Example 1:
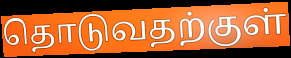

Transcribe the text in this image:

தொடுவதற்குள்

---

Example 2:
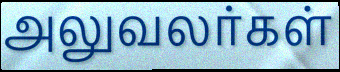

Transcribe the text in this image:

அலுவலர்கள்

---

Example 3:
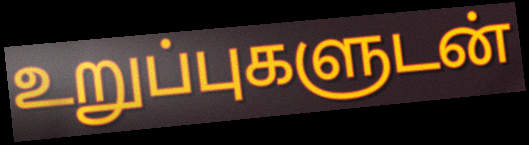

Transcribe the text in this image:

உறுப்புகளுடன்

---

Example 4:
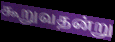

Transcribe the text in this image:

கூறுவதன்று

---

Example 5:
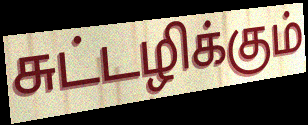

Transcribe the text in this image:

சுட்டழிக்கும்